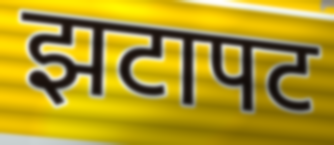
झटापट